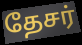
தேசர்